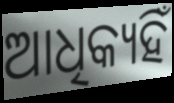
ଆଧିକ୍ୟହିଁ